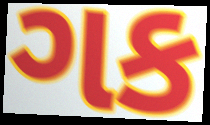
ગક